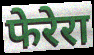
फेरेरा